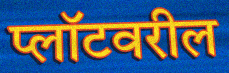
प्लॉटवरील